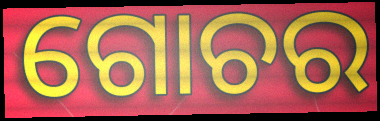
ଗୋଚର